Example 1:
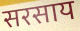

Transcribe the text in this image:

सरसाय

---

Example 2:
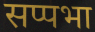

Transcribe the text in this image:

सप्पभा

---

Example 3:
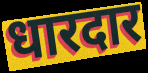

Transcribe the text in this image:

धारदार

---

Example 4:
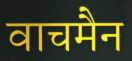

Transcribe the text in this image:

वाचमैन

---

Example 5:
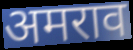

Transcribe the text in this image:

अमराव